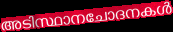
അടിസ്ഥാനചോദനകൾ